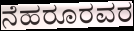
ನೆಹರೂರವರ